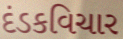
દંડકવિચાર